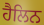
ਹੈਲਿਨ